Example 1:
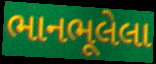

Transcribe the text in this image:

ભાનભૂલેલા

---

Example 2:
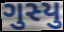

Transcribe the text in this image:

ગુસ્યુ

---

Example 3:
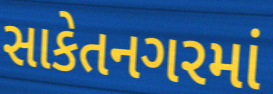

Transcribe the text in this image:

સાકેતનગરમાં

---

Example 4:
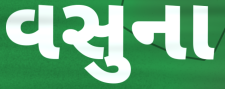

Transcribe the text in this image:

વસુના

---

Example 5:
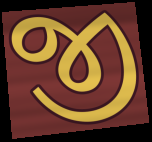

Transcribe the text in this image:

જી